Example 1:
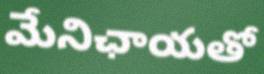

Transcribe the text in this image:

మేనిఛాయతో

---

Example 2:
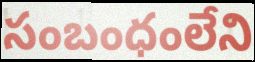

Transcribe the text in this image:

సంబంధంలేని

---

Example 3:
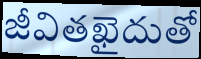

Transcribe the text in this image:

జీవితఖైదుతో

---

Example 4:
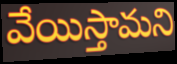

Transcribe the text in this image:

వేయిస్తామని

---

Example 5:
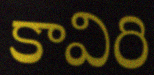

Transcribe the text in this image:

కావిరి